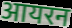
आयरन